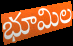
భూమిల